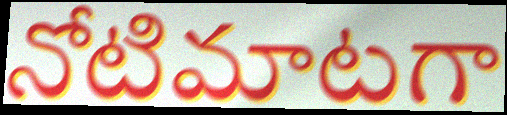
నోటిమాటగా